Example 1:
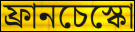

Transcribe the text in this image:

ফ্রানচেস্কো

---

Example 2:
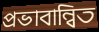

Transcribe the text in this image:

প্রভাবান্বিত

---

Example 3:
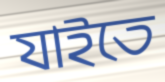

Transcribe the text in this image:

যাইতে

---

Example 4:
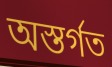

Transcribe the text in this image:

অস্তর্গত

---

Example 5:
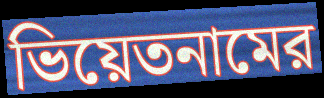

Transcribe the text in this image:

ভিয়েতনামের